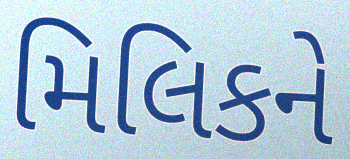
મિલિકને